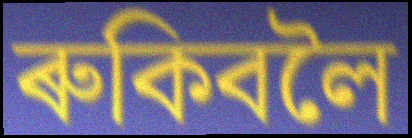
ৰুকিবলৈ